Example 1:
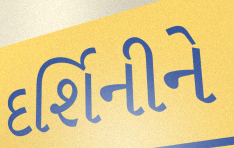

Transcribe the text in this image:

દર્શિનીને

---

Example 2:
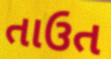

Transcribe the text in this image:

તાઉત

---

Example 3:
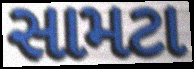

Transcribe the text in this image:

સામટા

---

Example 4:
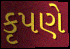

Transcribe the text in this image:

કૃપણે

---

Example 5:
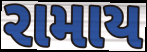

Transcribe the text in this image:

રામાય